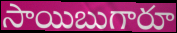
సాయిబుగారూ